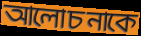
আলোচনাকে